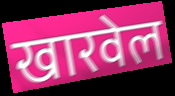
खारवेल